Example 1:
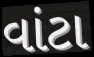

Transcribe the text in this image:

વાંટા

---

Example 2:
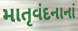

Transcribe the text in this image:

માતૃવંદનાનાં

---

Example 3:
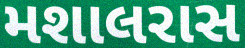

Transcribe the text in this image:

મશાલરાસ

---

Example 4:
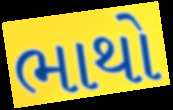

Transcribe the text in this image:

ભાથો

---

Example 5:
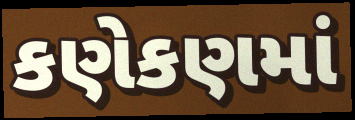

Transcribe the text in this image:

કણેકણમાં